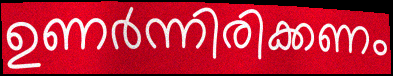
ഉണർന്നിരിക്കണം